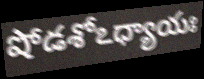
షోడశోఽధ్యాయః